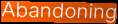
Abandoning